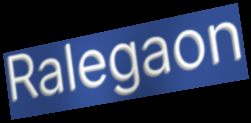
Ralegaon